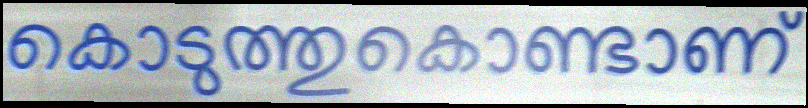
കൊടുത്തുകൊണ്ടാണ്